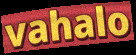
vahalo